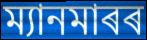
ম্যানমাৰৰ